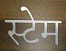
स्टेम